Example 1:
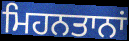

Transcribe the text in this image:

ਮਿਹਨਤਾਨਾਂ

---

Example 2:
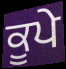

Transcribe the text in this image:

ਕੂਪੇ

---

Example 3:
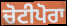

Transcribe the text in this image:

ਚੋਟੀਪੋਰਾ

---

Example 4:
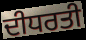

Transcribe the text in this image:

ਦੀਧਰਤੀ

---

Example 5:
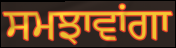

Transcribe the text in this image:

ਸਮਝਾਵਾਂਗਾ